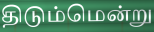
திடும்மென்று